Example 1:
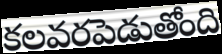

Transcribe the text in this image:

కలవరపెడుతోంది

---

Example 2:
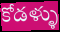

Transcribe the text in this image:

కోడళ్ళు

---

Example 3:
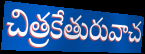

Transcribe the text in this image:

చిత్రకేతురువాచ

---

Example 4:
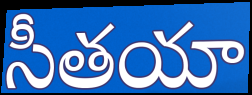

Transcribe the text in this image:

సీతయా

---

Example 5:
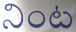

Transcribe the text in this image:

నింట